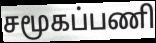
சமூகப்பணி